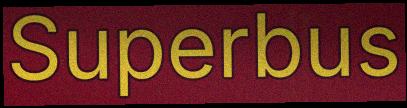
Superbus